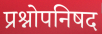
प्रश्नोपनिषद